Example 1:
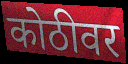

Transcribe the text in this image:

कोठीवर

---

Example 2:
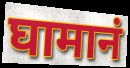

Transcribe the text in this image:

घामानं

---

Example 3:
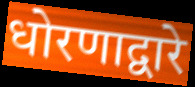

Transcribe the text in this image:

धोरणाद्वारे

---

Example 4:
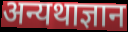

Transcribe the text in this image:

अन्यथाज्ञान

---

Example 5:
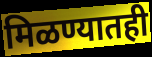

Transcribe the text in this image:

मिळण्यातही